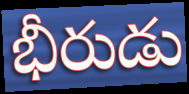
భీరుడు